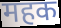
महक